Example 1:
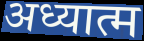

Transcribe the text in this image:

अध्यात्म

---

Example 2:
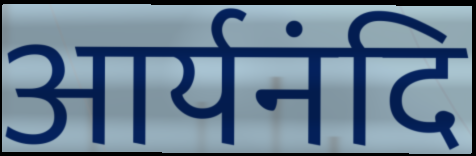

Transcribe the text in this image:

आर्यनंदि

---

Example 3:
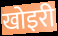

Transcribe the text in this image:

खोइरी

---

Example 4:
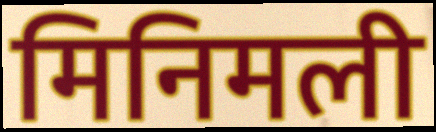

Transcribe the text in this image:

मिनिमली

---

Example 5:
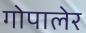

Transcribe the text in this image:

गोपालेर